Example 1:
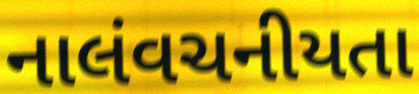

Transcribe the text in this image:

નાલંવચનીયતા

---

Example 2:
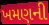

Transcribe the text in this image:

ખમણની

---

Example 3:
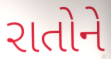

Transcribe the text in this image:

રાતોને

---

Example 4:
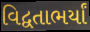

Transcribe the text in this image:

વિદ્વતાભર્યાં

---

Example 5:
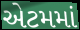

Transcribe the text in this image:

એટમમાં